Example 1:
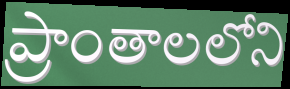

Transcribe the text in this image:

ప్రాంతాలలోని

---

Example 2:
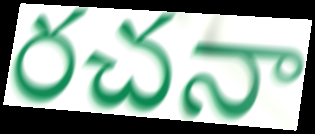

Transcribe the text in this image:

రచనా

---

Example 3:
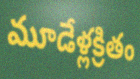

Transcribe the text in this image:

మూడేళ్లక్రితం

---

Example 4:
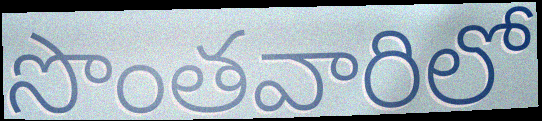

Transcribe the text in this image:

సొంతవారిలో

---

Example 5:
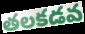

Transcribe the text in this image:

తలకడవ